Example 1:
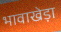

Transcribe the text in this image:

भावाखेड़ा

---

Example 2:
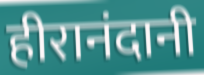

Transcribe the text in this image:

हीरानंदानी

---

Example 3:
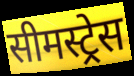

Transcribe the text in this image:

सीमस्ट्रेस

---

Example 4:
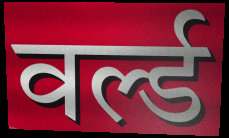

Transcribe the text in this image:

वर्ल्ड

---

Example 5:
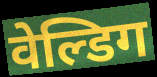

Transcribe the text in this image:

वेल्डिग